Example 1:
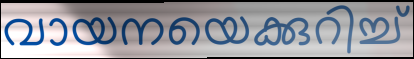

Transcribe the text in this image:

വായനയെക്കുറിച്ച്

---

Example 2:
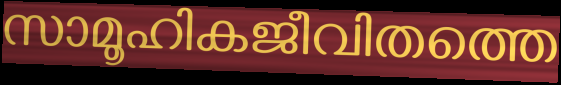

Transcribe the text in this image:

സാമൂഹികജീവിതത്തെ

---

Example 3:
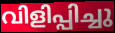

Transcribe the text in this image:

വിളിപ്പിച്ചു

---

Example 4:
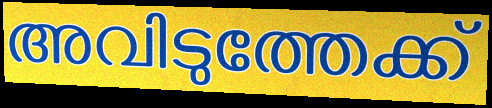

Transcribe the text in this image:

അവിടുത്തേക്ക്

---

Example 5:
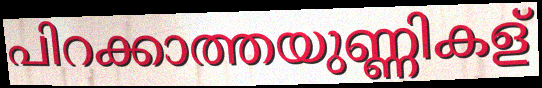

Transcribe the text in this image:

പിറക്കാത്തയുണ്ണികള്